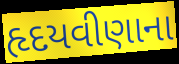
હૃદયવીણાના